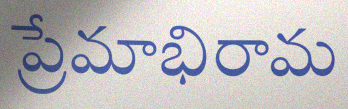
ప్రేమాభిరామ